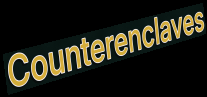
Counterenclaves